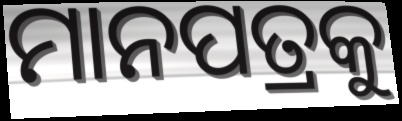
ମାନପତ୍ରକୁ